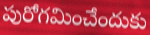
పురోగమించేందుకు